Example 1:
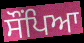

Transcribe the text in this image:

ਸੌਂਪਿਆ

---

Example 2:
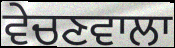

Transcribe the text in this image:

ਵੇਚਣਵਾਲਾ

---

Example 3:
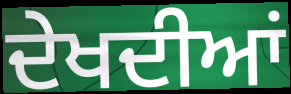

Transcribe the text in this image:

ਦੇਖਦੀਆਂ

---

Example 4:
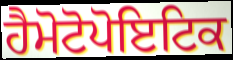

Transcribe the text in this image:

ਹੈਮੋਟੋਪੋਇਟਿਕ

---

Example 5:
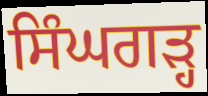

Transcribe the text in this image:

ਸਿੰਘਗੜ੍ਹ